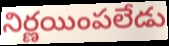
నిర్ణయింపలేడు